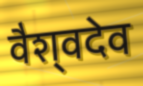
वैश्वदेव